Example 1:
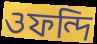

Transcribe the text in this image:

ওফন্দি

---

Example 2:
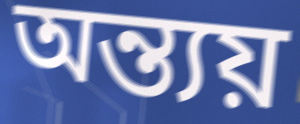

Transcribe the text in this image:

অন্ত্যয়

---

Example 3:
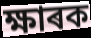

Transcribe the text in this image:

ক্ষাৰক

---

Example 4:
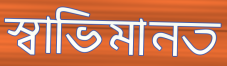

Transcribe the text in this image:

স্বাভিমানত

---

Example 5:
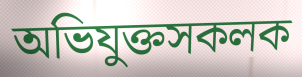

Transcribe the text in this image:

অভিযুক্তসকলক